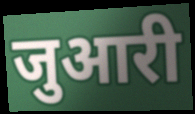
जुआरी